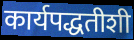
कार्यपद्धतीशी